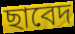
ছাবেদ